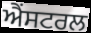
ਐਂਸਟਰਲ